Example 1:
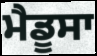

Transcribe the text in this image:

ਮੈਡੂਸਾ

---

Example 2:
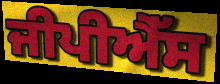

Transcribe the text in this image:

ਜੀਪੀਐੱਸ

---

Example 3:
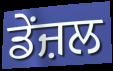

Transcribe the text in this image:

ਡੇਂਜ਼ਲ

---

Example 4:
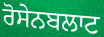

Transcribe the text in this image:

ਰੋਸੇਨਬਲਾਟ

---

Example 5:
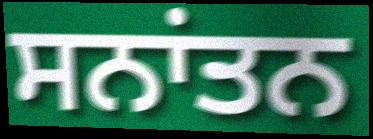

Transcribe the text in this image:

ਸਨਾਂਤਨ